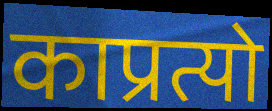
काप्रत्यो